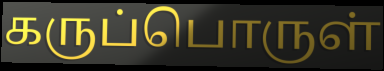
கருப்பொருள்